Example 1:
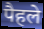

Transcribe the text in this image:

पैहले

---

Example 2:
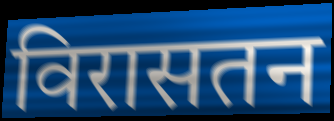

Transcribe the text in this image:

विरासतन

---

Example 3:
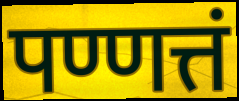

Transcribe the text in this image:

पण्णत्तं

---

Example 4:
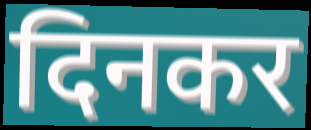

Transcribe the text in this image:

दिनकर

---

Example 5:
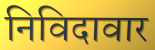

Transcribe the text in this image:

निविदावार